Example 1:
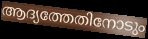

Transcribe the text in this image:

ആദ്യത്തേതിനോടും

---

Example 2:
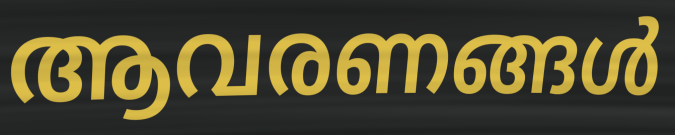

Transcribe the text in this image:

ആവരണങ്ങൾ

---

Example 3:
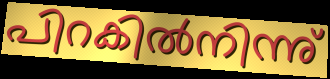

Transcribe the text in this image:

പിറകിൽനിന്നു്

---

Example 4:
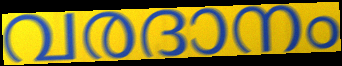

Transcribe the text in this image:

വരദാനം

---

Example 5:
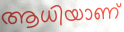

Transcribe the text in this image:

ആധിയാണ്